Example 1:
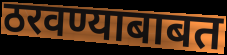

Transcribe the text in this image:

ठरवण्याबाबत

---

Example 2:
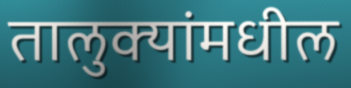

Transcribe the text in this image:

तालुक्यांमधील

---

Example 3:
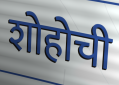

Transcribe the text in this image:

शोहोची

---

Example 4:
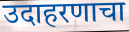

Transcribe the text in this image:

उदाहरणाचा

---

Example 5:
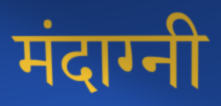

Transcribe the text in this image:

मंदाग्नी